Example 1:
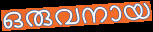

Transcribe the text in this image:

ഒരുവനായ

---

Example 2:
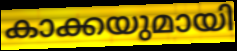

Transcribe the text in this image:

കാക്കയുമായി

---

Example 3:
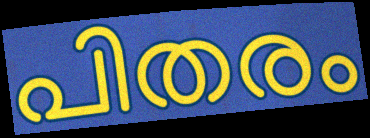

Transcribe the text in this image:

പിതരം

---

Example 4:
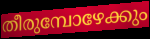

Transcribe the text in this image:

തീരുമ്പോഴേക്കും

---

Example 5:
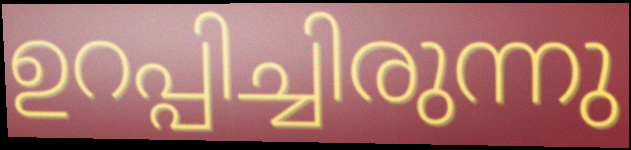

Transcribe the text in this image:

ഉറപ്പിച്ചിരുന്നു